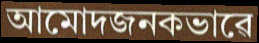
আমোদজনকভাৱে